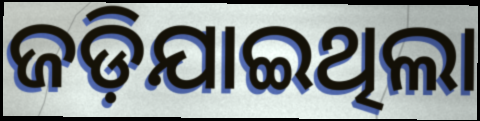
ଜଡ଼ିଯାଇଥିଲା